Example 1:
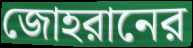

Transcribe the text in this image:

জোহরানের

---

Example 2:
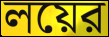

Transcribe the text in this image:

লয়ের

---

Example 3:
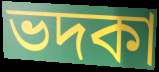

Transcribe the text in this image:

ভদকা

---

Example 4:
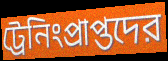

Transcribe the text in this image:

ট্রেনিংপ্রাপ্তদের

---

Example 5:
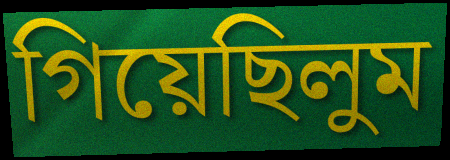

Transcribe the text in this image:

গিয়েছিলুম